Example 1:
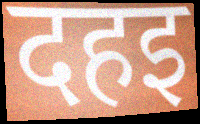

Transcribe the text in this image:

दहइ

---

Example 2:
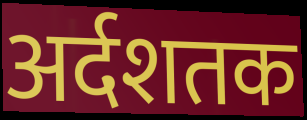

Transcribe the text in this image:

अर्दशतक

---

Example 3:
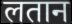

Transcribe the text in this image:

लतान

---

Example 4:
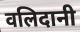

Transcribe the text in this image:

वलिदानी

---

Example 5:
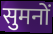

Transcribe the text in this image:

सुमनों